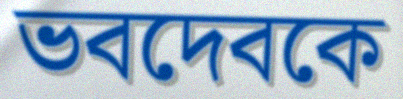
ভবদেবকে